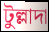
টুল্লাদা